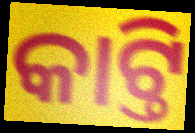
କାଟ୍ତି